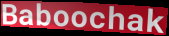
Baboochak